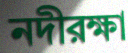
নদীরক্ষা